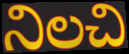
నిలచి